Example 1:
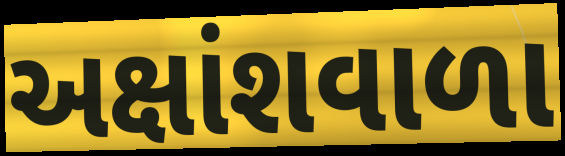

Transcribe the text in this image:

અક્ષાંશવાળા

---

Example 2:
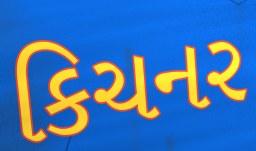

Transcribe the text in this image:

કિચનર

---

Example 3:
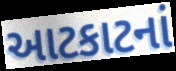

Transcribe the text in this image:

આટકાટનાં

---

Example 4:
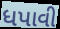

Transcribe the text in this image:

ધપાવી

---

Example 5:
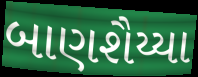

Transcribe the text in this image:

બાણશૈય્યા